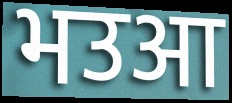
भउआ